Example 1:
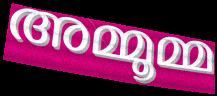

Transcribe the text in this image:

അമ്മൂമ്മ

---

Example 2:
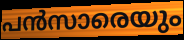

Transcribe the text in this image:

പൻസാരെയും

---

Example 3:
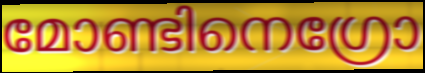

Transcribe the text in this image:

മോണ്ടിനെഗ്രോ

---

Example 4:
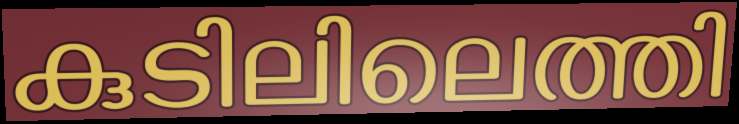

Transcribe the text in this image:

കുടിലിലെത്തി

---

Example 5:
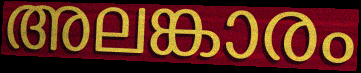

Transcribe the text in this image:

അലങ്കാരം